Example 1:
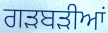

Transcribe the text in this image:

ਗੜਬੜੀਆਂ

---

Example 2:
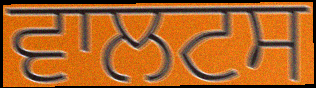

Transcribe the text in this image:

ਵਾਲਟਸ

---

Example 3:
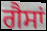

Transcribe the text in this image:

ਗੈਸਾਂ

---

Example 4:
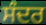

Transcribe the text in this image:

ਸੰਦਰ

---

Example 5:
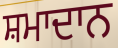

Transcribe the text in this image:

ਸ਼ਮਾਦਾਨ